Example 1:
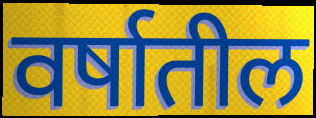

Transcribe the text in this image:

वर्षातील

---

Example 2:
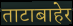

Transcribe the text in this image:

ताटाबाहेर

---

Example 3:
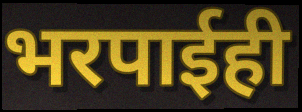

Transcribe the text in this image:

भरपाईही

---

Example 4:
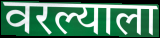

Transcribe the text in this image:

वरल्याला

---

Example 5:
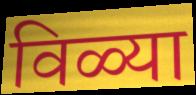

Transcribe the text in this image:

विळ्या